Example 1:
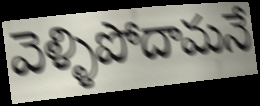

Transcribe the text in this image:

వెళ్ళిపోదామనే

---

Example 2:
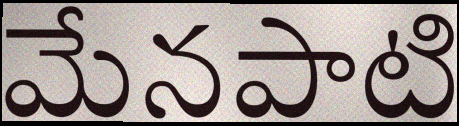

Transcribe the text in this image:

మేనపాటి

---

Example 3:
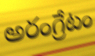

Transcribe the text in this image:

అరంగ్రేటం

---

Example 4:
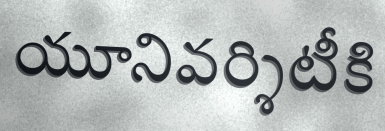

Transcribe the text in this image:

యూనివర్శిటీకి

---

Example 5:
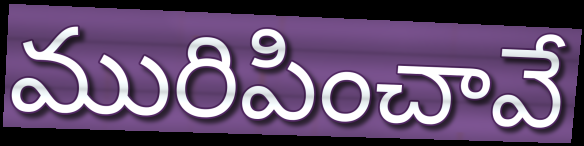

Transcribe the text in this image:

మురిపించావే